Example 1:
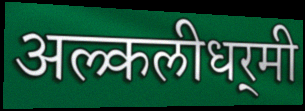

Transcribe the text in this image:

अल्कलीधर्मी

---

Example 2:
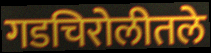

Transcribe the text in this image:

गडचिरोलीतले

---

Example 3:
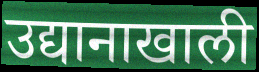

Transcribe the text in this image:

उद्यानाखाली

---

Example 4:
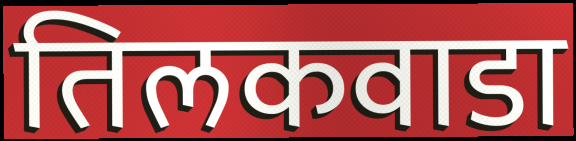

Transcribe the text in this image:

तिलकवाडा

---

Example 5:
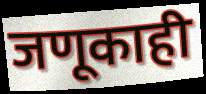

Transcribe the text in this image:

जणूकाही